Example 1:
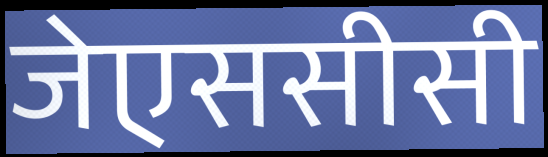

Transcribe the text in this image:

जेएससीसी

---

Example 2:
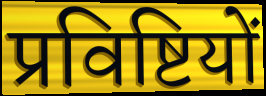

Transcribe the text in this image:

प्रविष्टियों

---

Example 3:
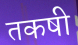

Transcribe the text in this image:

तकषी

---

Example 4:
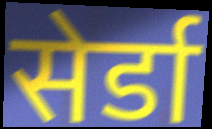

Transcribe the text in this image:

सेर्डा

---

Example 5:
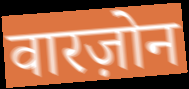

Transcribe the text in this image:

वारज़ोन